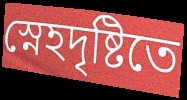
স্নেহদৃষ্টিতে